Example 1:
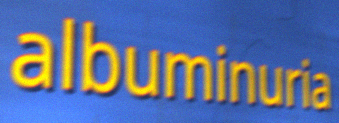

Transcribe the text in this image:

albuminuria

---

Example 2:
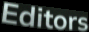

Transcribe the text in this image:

Editors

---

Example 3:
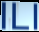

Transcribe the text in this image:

ILI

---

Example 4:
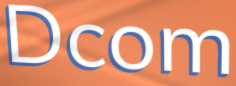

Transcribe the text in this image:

Dcom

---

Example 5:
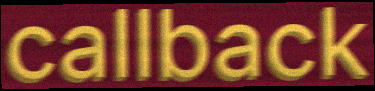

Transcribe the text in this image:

callback